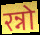
रन्नो